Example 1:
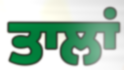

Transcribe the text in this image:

ਤਾਲਾਂ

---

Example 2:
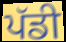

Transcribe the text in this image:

ਪੱਡੀ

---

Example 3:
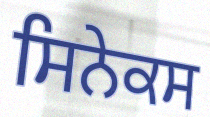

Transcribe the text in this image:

ਸਿਨੇਕਸ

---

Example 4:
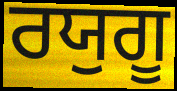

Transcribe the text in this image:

ਰਯੁਗੂ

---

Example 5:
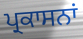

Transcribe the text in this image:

ਪ੍ਰਕਾਸਨਾਂ